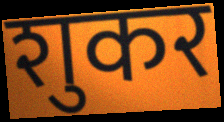
शुकर